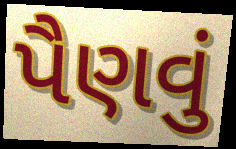
પૈણવું